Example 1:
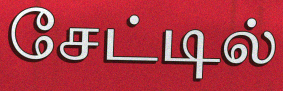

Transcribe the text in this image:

சேட்டில்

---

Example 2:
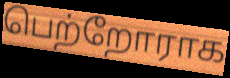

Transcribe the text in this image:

பெற்றோராக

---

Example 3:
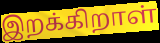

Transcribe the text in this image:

இறக்கிறாள்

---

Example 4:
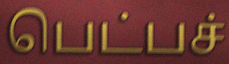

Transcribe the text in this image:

பெட்பச்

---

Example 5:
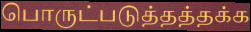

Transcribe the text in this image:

பொருட்படுத்தத்தக்க